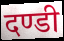
दण्डी